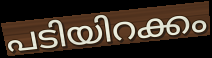
പടിയിറക്കം